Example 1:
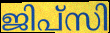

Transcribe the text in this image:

ജിപ്സി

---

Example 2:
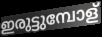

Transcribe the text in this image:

ഇരുട്ടുമ്പോള്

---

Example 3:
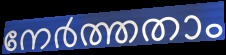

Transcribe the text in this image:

നേർത്തതാം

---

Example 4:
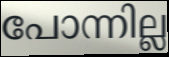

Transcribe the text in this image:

പോന്നില്ല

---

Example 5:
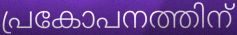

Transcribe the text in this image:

പ്രകോപനത്തിന്